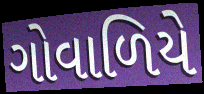
ગોવાળિયે